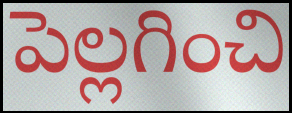
పెల్లగించి